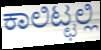
ಕಾಲಿಟ್ಟಲ್ಲಿ